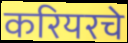
करियरचे